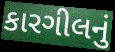
કારગીલનું